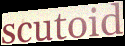
scutoid